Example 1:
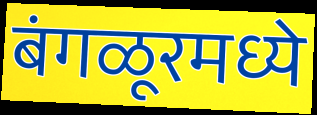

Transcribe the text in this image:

बंगळूरमध्ये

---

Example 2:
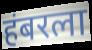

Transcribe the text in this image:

हंबरला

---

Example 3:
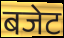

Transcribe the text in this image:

बजेट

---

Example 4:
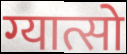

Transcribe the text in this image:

ग्यात्सो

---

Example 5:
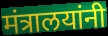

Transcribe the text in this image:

मंत्रालयांनी